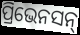
ପ୍ରିଭେନସନ୍